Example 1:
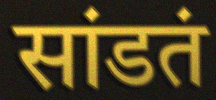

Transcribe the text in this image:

सांडतं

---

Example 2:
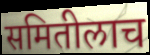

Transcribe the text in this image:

समितीलाच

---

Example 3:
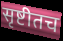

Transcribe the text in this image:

सृष्टीतच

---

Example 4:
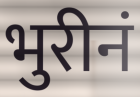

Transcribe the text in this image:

भुरीनं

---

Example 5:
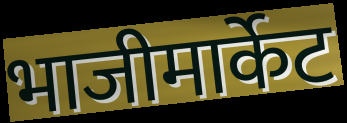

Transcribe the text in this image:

भाजीमार्केट